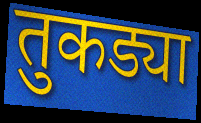
तुकड्या